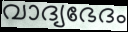
വാദ്യഭേദം